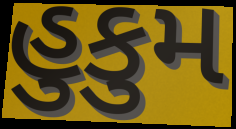
હુકુમ